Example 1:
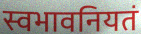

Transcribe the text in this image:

स्वभावनियतं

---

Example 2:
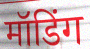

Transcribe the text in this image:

मॉडिंग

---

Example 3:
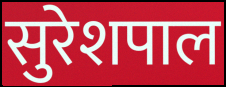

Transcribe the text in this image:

सुरेशपाल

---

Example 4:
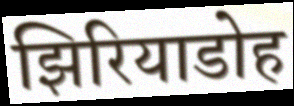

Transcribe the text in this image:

झिरियाडोह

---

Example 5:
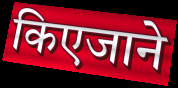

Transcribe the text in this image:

किएजाने